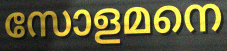
സോളമനെ